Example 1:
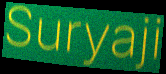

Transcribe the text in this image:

Suryaji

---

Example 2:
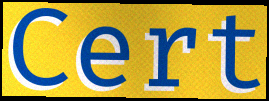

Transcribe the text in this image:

Cert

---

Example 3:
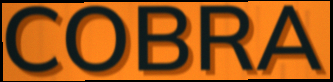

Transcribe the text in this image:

COBRA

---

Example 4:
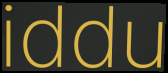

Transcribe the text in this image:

iddu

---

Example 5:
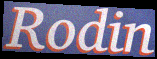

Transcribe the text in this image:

Rodin